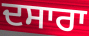
ਦਸਾਰਾ